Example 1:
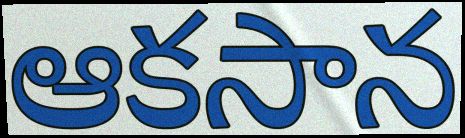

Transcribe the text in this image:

ఆకసాన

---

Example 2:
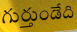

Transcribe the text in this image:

గుర్తుండేది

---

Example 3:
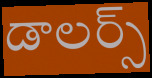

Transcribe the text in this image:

డాలర్స్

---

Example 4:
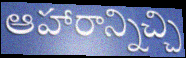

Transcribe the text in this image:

ఆహారాన్నిచ్చి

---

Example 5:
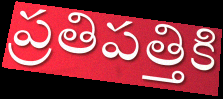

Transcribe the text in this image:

ప్రతిపత్తికి